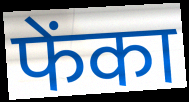
फेंका